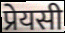
प्रेयसी